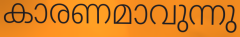
കാരണമാവുന്നു